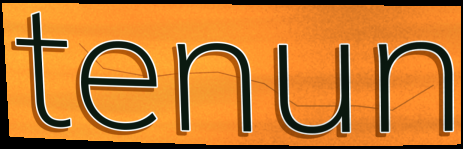
tenun